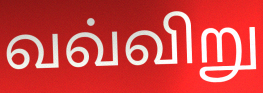
வவ்விறு